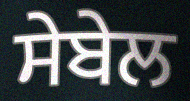
ਸੇਬੇਲ